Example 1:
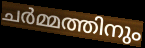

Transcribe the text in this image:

ചർമ്മത്തിനും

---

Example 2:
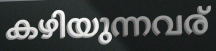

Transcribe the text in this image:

കഴിയുന്നവര്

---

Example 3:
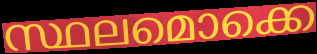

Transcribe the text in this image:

സ്ഥലമൊക്കെ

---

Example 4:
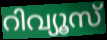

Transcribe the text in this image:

റിവ്യൂസ്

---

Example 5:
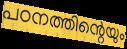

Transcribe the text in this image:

പഠനത്തിന്റെയും